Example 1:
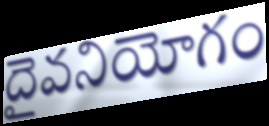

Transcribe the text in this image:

దైవనియోగం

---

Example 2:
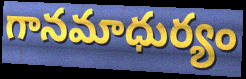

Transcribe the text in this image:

గానమాధుర్యం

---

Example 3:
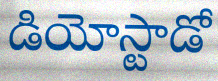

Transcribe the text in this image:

డియోస్టాడో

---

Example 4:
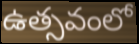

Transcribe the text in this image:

ఉత్సవంలో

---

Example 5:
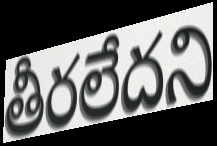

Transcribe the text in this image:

తీరలేదని